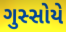
ગુસ્સોયે